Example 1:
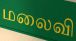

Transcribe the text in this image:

மலைவி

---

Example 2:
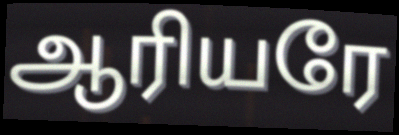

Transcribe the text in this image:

ஆரியரே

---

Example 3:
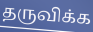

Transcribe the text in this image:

தருவிக்க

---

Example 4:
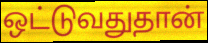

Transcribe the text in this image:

ஒட்டுவதுதான்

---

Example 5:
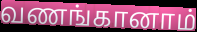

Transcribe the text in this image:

வணங்கானாம்